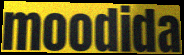
moodida